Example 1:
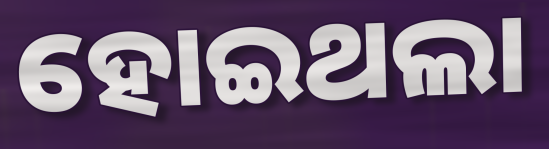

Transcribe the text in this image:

ହୋଇଥଲା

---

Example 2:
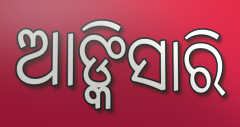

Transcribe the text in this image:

ଆଙ୍କିସାରି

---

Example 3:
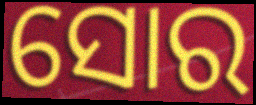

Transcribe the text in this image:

ସୋର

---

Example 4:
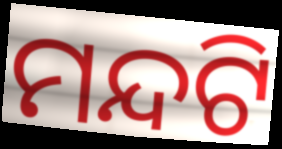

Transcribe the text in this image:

ମନ୍ଦଟି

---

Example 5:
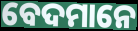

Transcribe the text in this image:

ବେଦମାନେ